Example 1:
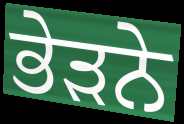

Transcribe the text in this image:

ਭੇੜਨੇ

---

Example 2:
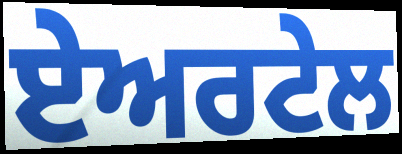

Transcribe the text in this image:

ਏਅਰਟੇਲ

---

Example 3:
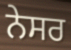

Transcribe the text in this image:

ਨੇਸਰ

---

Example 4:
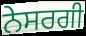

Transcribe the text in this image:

ਨੇਸਰਗੀ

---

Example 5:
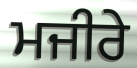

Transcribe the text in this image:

ਮਜੀਰੇ